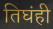
तिघंही